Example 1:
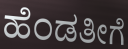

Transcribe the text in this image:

ಹೆಂಡತೀಗೆ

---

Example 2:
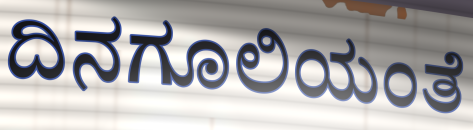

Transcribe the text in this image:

ದಿನಗೂಲಿಯಂತೆ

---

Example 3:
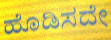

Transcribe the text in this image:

ಹೊಡಿಸದೇ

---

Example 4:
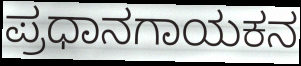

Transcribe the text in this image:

ಪ್ರಧಾನಗಾಯಕನ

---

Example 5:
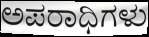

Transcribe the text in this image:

ಅಪರಾಧಿಗಳು